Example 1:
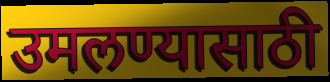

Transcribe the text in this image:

उमलण्यासाठी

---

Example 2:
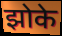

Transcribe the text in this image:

झोके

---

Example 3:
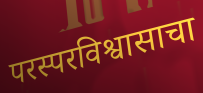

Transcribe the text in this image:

परस्परविश्वासाचा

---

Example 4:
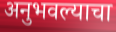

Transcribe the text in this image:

अनुभवल्याचा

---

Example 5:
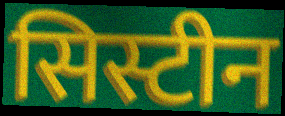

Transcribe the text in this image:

सिस्टीन